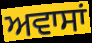
ਅਵਾਸਾਂ